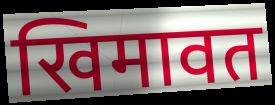
खिमावत